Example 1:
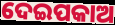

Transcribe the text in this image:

ଦେଇପକାଅ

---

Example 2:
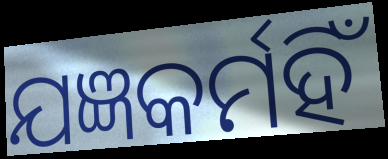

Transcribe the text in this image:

ଯଜ୍ଞକର୍ମହିଁ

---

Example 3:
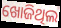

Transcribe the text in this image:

ଖୋଜିଥିଲ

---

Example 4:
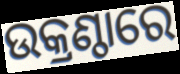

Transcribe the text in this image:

ଉକ୍ରଣ୍ଠାରେ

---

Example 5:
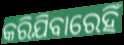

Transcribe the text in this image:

କରିଯିବାରେହିଁ